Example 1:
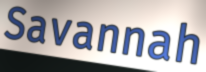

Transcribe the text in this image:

Savannah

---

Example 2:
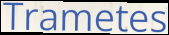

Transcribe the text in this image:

Trametes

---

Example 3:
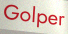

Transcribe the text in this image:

Golper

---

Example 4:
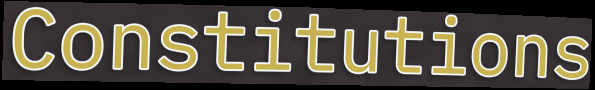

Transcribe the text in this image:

Constitutions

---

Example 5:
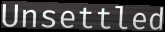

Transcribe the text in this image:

Unsettled